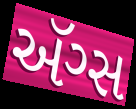
ઍગ્સ